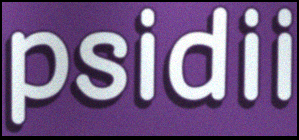
psidii